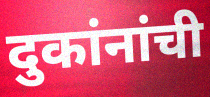
दुकांनांची